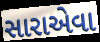
સારાએવા